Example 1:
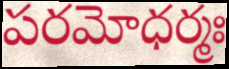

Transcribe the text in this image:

పరమోధర్మః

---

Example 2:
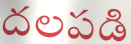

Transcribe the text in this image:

దలపడి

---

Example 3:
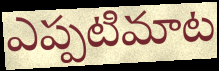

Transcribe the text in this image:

ఎప్పటిమాట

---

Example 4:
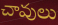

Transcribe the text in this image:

చావులు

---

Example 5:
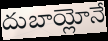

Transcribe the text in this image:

దుబాయ్లోనే